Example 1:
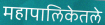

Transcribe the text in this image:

महापालिकेतले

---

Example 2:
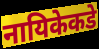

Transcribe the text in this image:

नायिकेकडे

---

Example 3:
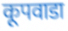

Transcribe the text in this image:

कूपवाडा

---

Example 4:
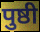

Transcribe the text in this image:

पुष्ठी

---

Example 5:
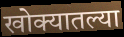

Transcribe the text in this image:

खोक्यातल्या